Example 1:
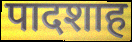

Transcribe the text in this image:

पादशाह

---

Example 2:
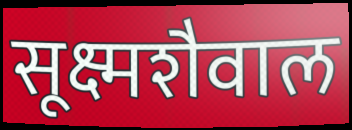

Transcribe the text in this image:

सूक्ष्मशैवाल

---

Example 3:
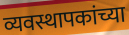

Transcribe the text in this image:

व्यवस्थापकांच्या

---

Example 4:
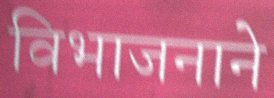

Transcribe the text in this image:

विभाजनाने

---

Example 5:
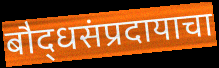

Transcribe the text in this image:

बौद्धसंप्रदायाचा